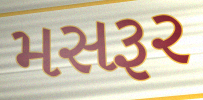
મસરૂર